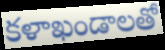
కళాఖండాలతో